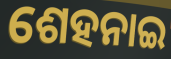
ଶେହନାଇ